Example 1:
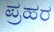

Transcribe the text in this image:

ಪ್ರಹರ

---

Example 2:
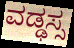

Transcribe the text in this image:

ವಡ್ಢಸ್ಸ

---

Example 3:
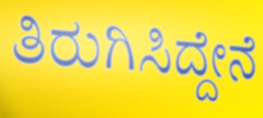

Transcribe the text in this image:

ತಿರುಗಿಸಿದ್ದೇನೆ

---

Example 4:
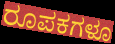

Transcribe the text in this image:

ರೂಪಕಗಳೂ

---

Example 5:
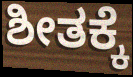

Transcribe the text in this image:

ಶೀತಕ್ಕೆ